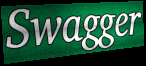
Swagger